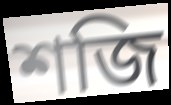
শজি